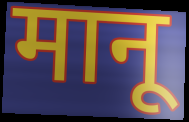
मानू